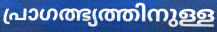
പ്രാഗത്ഭ്യത്തിനുള്ള